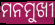
ମନମୁଖୀ